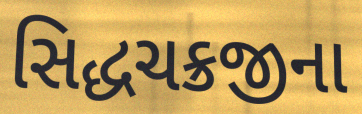
સિદ્ધચક્રજીના